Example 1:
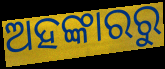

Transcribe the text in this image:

ଅହଙ୍କାରରୁ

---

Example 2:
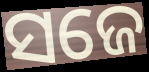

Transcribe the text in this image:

ସଜେ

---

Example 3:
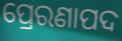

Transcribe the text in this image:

ପ୍ରେରଣାପଦ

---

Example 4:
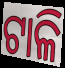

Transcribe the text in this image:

ଟାଳି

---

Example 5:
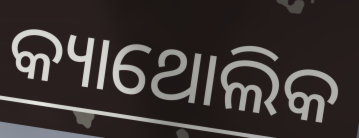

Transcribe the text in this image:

କ୍ୟାଥୋଲିକ